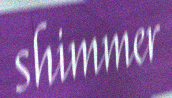
shimmer